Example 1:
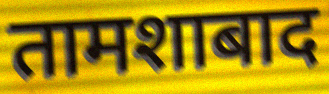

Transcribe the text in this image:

तामशाबाद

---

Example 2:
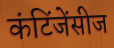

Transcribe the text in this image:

कंटिंजेंसीज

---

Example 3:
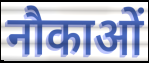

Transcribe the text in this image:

नौकाओं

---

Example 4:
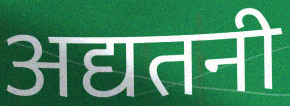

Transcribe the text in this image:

अद्यतनी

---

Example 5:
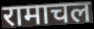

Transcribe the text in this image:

रामाचल